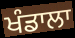
ਖੰਡਾਲਾ